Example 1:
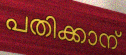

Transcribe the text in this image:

പതിക്കാന്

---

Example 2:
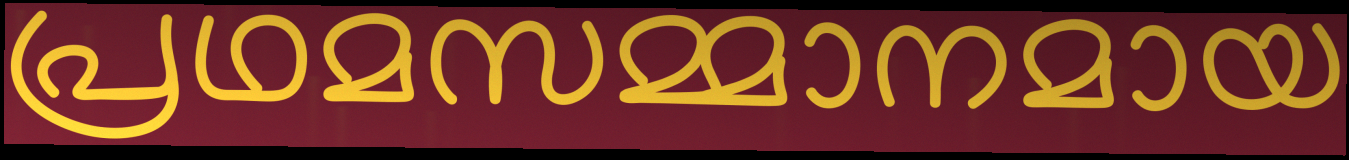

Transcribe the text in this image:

പ്രഥമസമ്മാനമായ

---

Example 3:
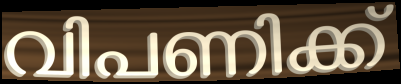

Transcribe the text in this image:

വിപണിക്ക്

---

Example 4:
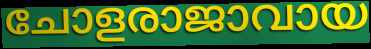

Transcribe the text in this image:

ചോളരാജാവായ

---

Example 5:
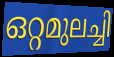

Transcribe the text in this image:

ഒറ്റമുലച്ചി